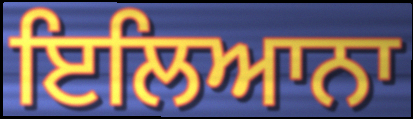
ਇਲਿਆਨਾ